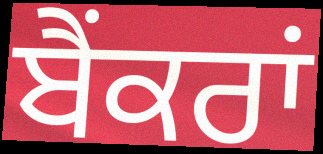
ਬੈਂਕਰਾਂ